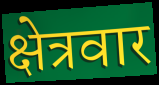
क्षेत्रवार